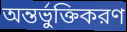
অন্তর্ভুক্তিকরণ